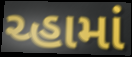
ચ્હામાં